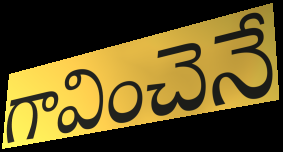
గావించెనే